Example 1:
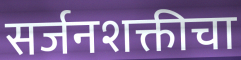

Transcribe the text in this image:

सर्जनशक्तीचा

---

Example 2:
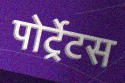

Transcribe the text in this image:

पोर्ट्रेटस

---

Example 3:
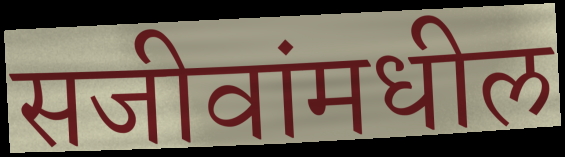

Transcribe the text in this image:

सजीवांमधील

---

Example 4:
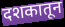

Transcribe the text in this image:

दशकातून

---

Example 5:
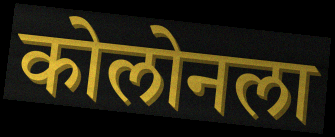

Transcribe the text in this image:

कोलोनला